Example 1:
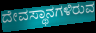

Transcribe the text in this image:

ದೇವಸ್ಥಾನಗಳಿರುವ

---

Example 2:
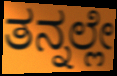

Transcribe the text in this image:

ತನ್ನಲ್ಲೇ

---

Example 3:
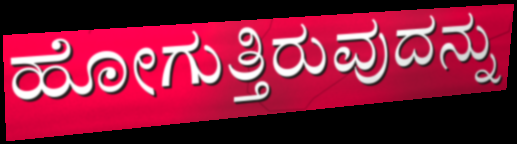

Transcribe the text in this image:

ಹೋಗುತ್ತಿರುವುದನ್ನು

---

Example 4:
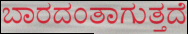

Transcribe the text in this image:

ಬಾರದಂತಾಗುತ್ತದೆ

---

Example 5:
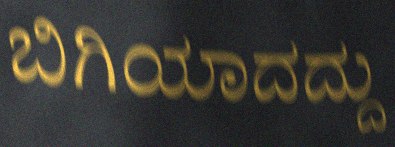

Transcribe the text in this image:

ಬಿಗಿಯಾದದ್ದು